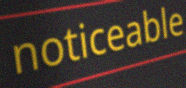
noticeable